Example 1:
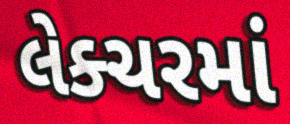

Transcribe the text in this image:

લેક્ચરમાં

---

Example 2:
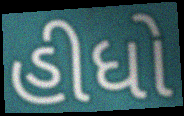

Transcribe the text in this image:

હીધો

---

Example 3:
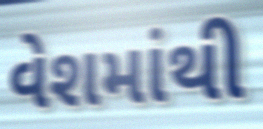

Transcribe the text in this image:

વેશમાંથી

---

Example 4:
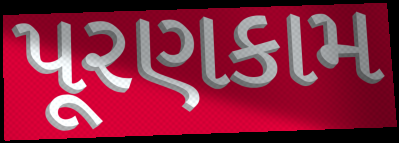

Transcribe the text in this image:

પૂરણકામ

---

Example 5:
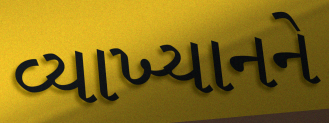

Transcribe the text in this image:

વ્યાખ્યાનને